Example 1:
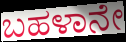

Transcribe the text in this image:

ಬಹಳಾನೇ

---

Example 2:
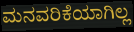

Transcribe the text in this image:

ಮನವರಿಕೆಯಾಗಿಲ್ಲ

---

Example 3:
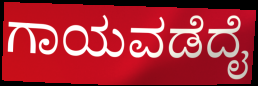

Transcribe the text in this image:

ಗಾಯವಡೆದೈ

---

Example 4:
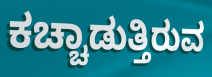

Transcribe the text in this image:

ಕಚ್ಚಾಡುತ್ತಿರುವ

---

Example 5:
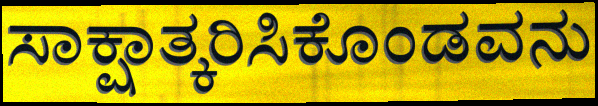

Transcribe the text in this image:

ಸಾಕ್ಷಾತ್ಕರಿಸಿಕೊಂಡವನು